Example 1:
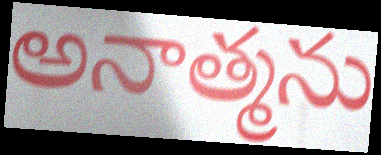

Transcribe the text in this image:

అనాత్మను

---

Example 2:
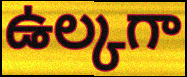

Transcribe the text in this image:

ఉల్కగా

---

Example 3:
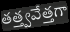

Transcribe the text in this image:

తత్త్వవేత్తగా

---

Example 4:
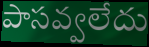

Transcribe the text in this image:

పాసవ్వలేదు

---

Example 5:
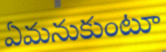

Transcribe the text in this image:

ఏమనుకుంటూ